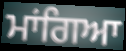
ਮਾਂਗਿਆ